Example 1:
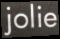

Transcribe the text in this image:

jolie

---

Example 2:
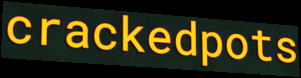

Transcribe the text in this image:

crackedpots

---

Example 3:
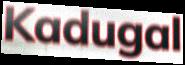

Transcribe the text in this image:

Kadugal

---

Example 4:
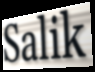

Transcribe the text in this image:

Salik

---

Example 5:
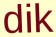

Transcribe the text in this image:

dik